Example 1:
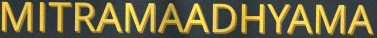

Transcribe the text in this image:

MITRAMAADHYAMA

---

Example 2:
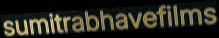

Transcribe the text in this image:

sumitrabhavefilms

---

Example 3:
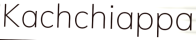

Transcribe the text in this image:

Kachchiappa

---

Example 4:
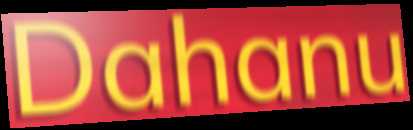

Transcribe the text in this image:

Dahanu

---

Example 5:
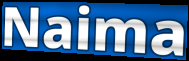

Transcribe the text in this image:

Naima